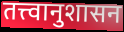
तत्त्वानुशासन